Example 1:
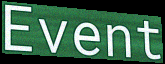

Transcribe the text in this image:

Event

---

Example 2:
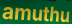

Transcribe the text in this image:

amuthu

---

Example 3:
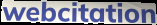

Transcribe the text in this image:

webcitation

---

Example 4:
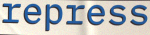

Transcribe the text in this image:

repress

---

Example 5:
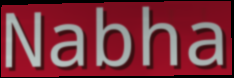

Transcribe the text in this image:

Nabha